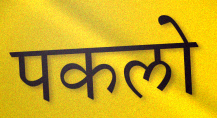
पकलो